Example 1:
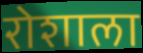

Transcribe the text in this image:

रोशाला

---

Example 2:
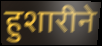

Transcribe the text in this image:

हुशारीने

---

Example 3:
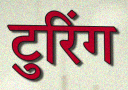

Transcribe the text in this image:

टुरिंग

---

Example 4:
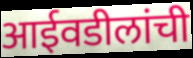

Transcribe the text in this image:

आईवडीलांची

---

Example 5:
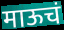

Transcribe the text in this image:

माऊचं